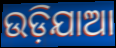
ଉଡ଼ିଯାଆ